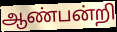
ஆண்பன்றி